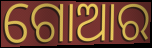
ଗୋଆର